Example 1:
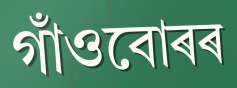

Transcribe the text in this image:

গাঁওবোৰৰ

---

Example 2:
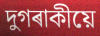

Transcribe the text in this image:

দুগৰাকীয়ে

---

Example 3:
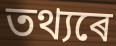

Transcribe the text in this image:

তথ্যৰে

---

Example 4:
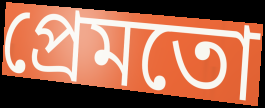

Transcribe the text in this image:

প্ৰেমতো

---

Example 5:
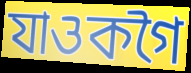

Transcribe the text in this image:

যাওকগৈ